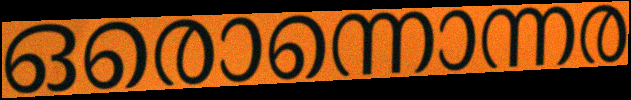
ഒരൊന്നൊന്നര